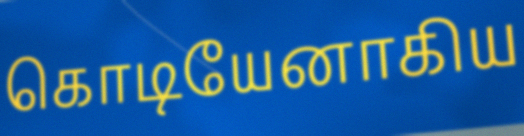
கொடியேனாகிய